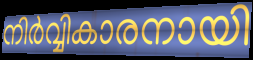
നിർവ്വികാരനായി